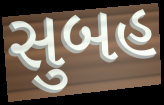
સુબહ